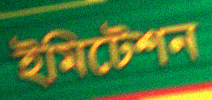
ইমিটেশন